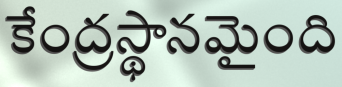
కేంద్రస్థానమైంది